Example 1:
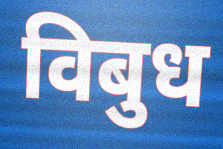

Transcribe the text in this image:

विबुध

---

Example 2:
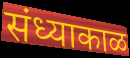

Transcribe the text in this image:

संध्याकाळ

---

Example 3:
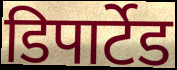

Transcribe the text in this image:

डिपार्टेड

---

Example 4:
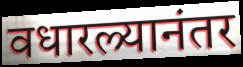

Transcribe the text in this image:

वधारल्यानंतर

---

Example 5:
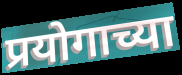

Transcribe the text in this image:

प्रयोगाच्या